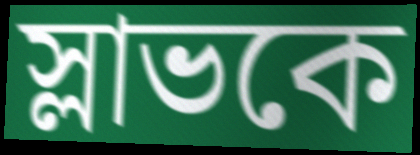
স্লাভকে